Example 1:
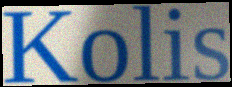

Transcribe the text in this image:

Kolis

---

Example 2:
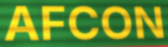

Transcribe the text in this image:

AFCON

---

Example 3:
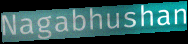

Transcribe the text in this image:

Nagabhushan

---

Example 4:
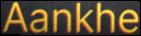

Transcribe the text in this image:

Aankhe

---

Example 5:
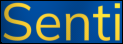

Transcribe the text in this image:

Senti